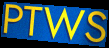
PTWS